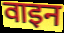
वाइन